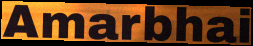
Amarbhai